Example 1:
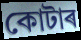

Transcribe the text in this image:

কোটাৰ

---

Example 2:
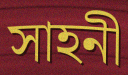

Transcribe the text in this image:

সাহনী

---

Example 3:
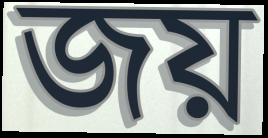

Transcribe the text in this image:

জয়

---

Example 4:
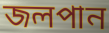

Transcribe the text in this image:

জলপান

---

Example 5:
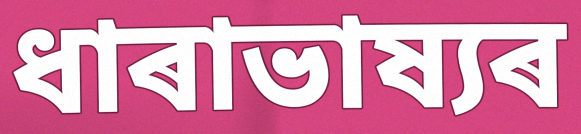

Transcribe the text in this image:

ধাৰাভাষ্যৰ